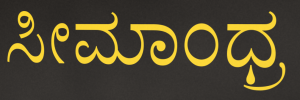
ಸೀಮಾಂಧ್ರ